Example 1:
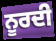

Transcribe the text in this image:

ਨੂਰਦੀ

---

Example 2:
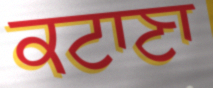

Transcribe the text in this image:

ਕਟਾਣਾ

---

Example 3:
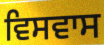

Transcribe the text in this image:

ਵਿਸਵਾਸ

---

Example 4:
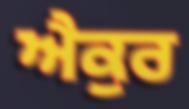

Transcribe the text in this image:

ਐਕੁਰ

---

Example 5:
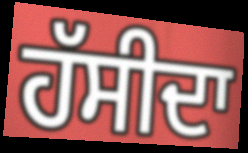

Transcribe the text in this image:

ਹੱਸੀਦਾ